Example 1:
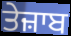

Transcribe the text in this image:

ਤੇਜ਼ਾਬ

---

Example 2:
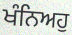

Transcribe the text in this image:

ਖੰਨਿਅਹੁ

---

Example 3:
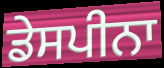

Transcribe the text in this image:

ਡੇਸਪੀਨਾ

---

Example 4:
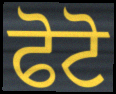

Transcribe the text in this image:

ਫੋਟੋ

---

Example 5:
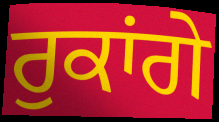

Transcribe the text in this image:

ਰੁਕਾਂਗੇ